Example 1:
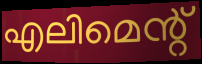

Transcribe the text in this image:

എലിമെന്റ്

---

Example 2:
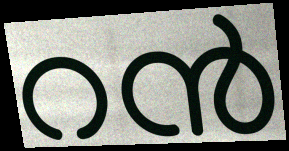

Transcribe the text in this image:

റൻ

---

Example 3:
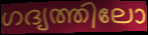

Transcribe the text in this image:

ഗദ്യത്തിലോ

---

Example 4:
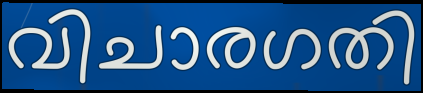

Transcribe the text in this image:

വിചാരഗതി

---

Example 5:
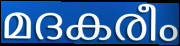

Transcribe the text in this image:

മദകരീം